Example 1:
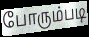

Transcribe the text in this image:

போரும்படி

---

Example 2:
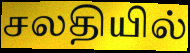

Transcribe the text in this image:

சலதியில்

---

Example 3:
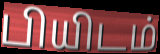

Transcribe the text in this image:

பியிடம்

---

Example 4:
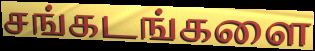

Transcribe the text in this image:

சங்கடங்களை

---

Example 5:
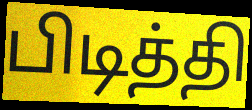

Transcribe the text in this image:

பிடித்தி